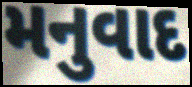
મનુવાદ